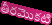
తీరమొకటి